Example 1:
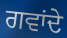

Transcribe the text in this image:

ਗਵਾਂਦੇ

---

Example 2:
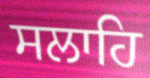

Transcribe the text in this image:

ਸਲਾਹਿ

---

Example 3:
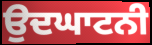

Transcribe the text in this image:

ਉਦਘਾਟਨੀ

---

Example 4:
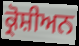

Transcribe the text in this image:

ਕ੍ਰੋਸ਼ੀਅਨ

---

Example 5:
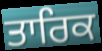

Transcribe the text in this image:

ਤਾਰਿਕ